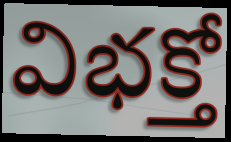
విభక్తో